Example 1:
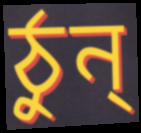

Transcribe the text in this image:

ঠুন্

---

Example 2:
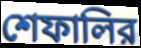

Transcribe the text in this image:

শেফালির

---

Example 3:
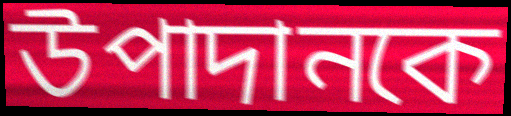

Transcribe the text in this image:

উপাদানকে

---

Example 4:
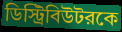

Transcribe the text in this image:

ডিস্ট্রিবিউটরকে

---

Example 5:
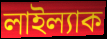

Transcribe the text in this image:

লাইল্যাক